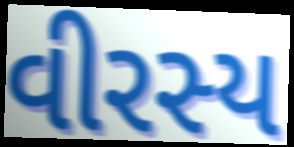
વીરસ્ય